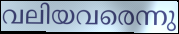
വലിയവരെന്നു